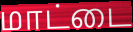
மாட்டை